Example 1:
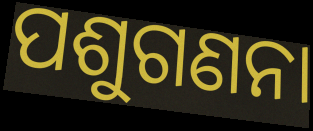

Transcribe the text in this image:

ପଶୁଗଣନା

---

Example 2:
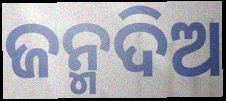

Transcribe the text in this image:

ଜନ୍ମଦିଅ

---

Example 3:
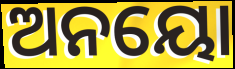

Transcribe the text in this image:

ଅନୟୋ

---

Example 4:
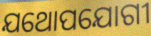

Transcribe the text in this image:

ଯଥୋପଯୋଗୀ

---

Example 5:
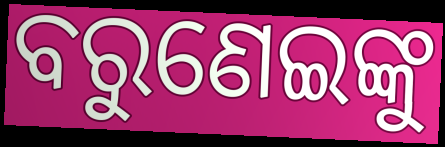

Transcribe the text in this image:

ବରୁଣେଇଙ୍କୁ